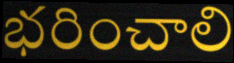
భరించాలి